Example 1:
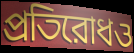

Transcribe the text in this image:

প্রতিরোধও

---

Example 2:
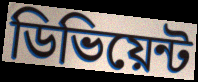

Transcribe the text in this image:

ডিভিয়েন্ট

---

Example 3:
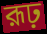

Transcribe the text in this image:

রূঢ়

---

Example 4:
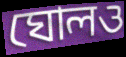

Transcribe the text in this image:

ঘোলও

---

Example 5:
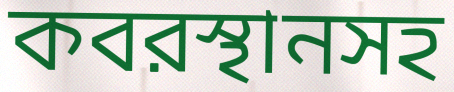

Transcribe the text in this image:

কবরস্থানসহ